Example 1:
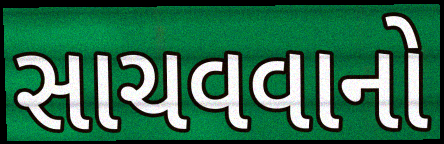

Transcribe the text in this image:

સાચવવાનો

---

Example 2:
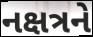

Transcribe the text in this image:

નક્ષત્રને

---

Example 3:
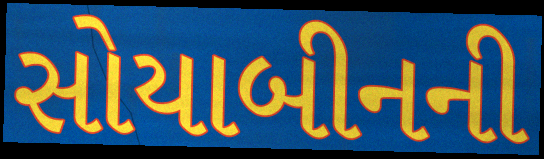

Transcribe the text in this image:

સોયાબીનની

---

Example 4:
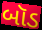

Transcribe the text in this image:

બૉડ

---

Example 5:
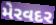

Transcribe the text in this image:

મેરવદર